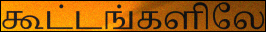
கூட்டங்களிலே